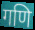
गणि